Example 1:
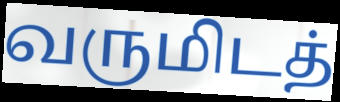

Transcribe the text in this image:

வருமிடத்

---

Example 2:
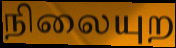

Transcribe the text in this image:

நிலையுற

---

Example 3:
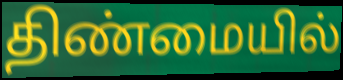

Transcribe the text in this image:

திண்மையில்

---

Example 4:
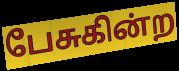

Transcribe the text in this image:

பேசுகின்ற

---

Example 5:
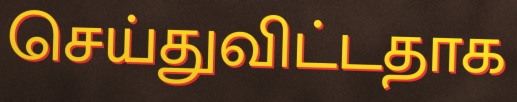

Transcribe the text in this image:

செய்துவிட்டதாக